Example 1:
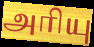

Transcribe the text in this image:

அரியு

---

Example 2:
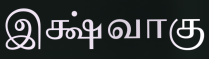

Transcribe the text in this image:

இக்ஷ்வாகு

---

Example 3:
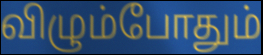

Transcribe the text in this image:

விழும்போதும்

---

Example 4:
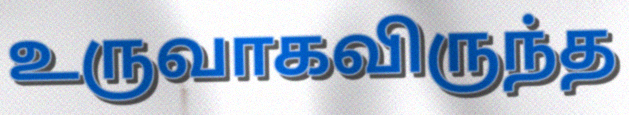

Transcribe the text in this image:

உருவாகவிருந்த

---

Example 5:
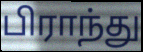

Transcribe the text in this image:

பிராந்து